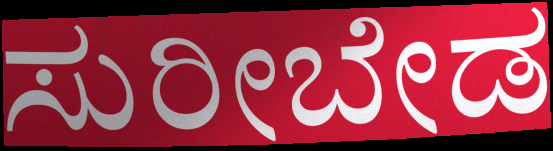
ಸುರೀಬೇಡ